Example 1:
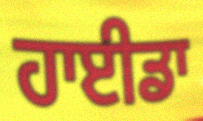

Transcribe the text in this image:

ਹਾਈਡਾ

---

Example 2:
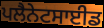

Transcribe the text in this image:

ਪਲੈਨੇਟਸਾਈਡ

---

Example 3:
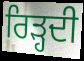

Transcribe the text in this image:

ਰਿੜ੍ਹਦੀ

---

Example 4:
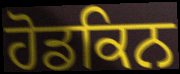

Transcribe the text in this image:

ਹੋਡਕਿਨ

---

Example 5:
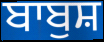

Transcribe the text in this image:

ਬਾਬੁਸ਼